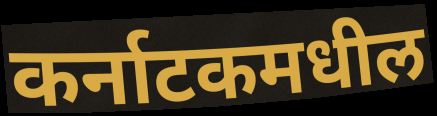
कर्नाटकमधील